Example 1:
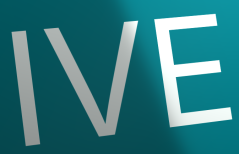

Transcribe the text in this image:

IVE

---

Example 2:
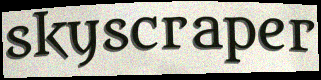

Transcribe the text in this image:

skyscraper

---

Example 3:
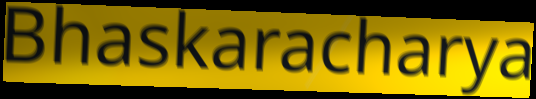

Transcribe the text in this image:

Bhaskaracharya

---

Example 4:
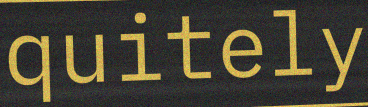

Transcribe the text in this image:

quitely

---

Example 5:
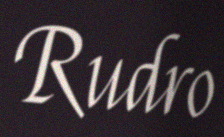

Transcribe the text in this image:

Rudro